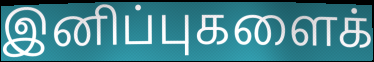
இனிப்புகளைக்